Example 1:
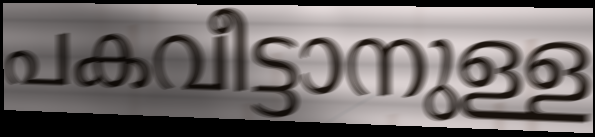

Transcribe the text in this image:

പകവീട്ടാനുള്ള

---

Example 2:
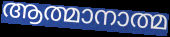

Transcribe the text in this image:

ആത്മാനാത്മ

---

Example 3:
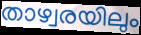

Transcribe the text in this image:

താഴ്വരയിലും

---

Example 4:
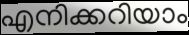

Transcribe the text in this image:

എനിക്കറിയാം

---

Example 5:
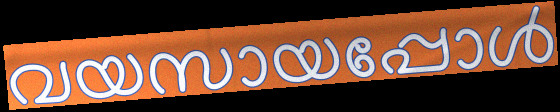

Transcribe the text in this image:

വയസായപ്പോൾ